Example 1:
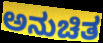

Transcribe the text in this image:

ಅನುಚಿತ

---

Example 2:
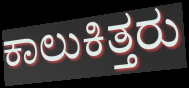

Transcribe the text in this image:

ಕಾಲುಕಿತ್ತರು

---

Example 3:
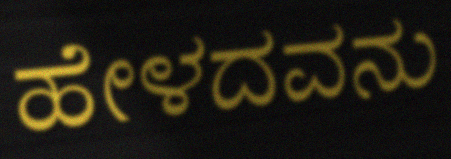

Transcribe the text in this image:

ಹೇಳದವನು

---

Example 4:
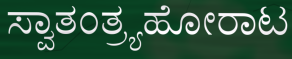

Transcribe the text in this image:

ಸ್ವಾತಂತ್ರ್ಯಹೋರಾಟ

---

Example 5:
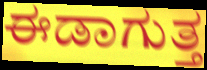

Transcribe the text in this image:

ಈಡಾಗುತ್ತ